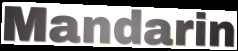
Mandarin